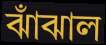
ঝাঁঝাল